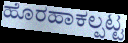
ಹೊರಹಾಕಲ್ಪಟ್ಟ